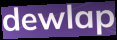
dewlap